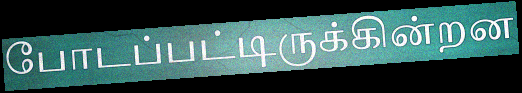
போடப்பட்டிருக்கின்றன